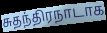
சுதந்திரநாடாக